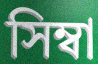
সিম্বা